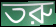
তরু